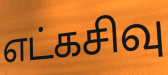
எட்கசிவு